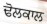
ਢੋਲਕਾਲ